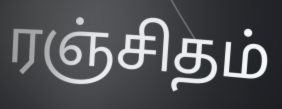
ரஞ்சிதம்